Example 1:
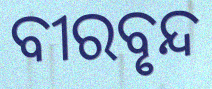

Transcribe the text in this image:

ବୀରବୃନ୍ଦ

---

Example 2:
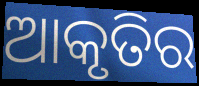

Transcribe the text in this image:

ଆକୃତିର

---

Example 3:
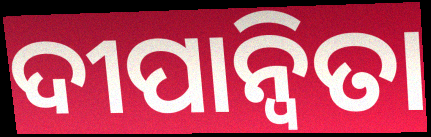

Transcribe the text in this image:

ଦୀପାନ୍ୱିତା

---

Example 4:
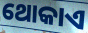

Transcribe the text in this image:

ଥୋକାଏ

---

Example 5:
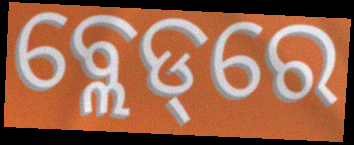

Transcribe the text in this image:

ବ୍ଲେଡ୍‌ରେ